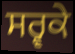
ਸਰ੍ਵਕੇ